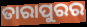
ତାରାପୁରର